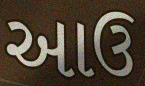
આઉ